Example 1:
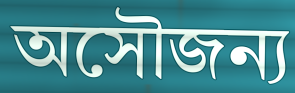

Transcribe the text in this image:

অসৌজন্য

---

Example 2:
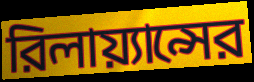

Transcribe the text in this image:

রিলায়্যান্সের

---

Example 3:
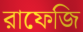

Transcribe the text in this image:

রাফেজি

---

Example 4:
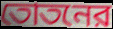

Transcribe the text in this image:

তোতনের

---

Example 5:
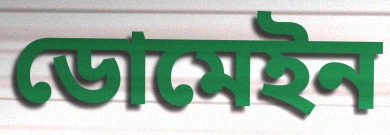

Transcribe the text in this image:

ডোমেইন